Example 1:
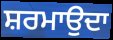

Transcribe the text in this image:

ਸ਼ਰਮਾਉਦਾ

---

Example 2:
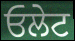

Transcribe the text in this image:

ਓਲੇਟ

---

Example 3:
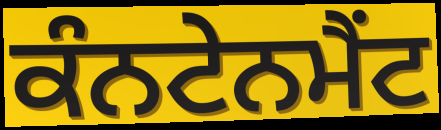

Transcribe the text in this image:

ਕੰਨਟੇਨਮੈਂਟ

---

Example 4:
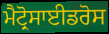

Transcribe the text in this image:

ਮੈਟ੍ਰੋਸਾਈਡਰੋਸ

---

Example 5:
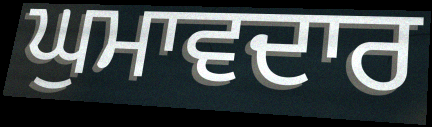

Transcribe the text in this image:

ਘੁਮਾਵਦਾਰ